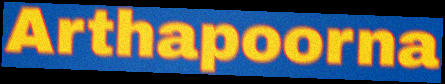
Arthapoorna